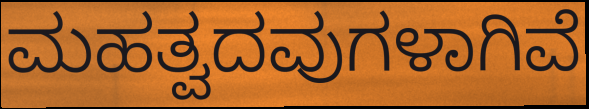
ಮಹತ್ವದವುಗಳಾಗಿವೆ